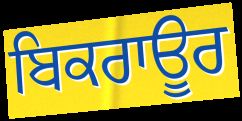
ਬਿਕਰਾਊਰ